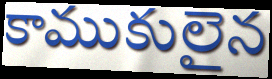
కాముకులైన